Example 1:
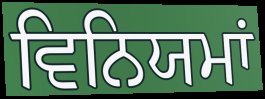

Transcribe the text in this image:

ਵਿਨਿਯਮਾਂ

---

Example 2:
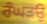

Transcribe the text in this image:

ਰੰਘੜਉ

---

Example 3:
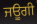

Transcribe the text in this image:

ਜਊਗੀ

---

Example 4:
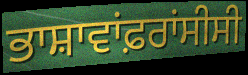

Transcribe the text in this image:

ਭਾਸ਼ਾਵਾਂਫ਼ਰਾਂਸੀਸੀ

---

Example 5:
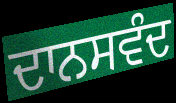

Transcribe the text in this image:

ਦਾਨਸਵੰਦ